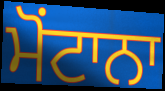
ਮੋਂਟਾਨਾ